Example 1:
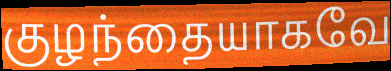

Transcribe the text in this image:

குழந்தையாகவே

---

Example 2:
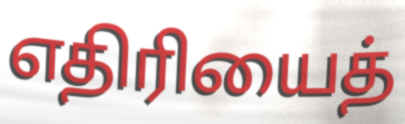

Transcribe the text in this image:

எதிரியைத்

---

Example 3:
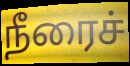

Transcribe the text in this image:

நீரைச்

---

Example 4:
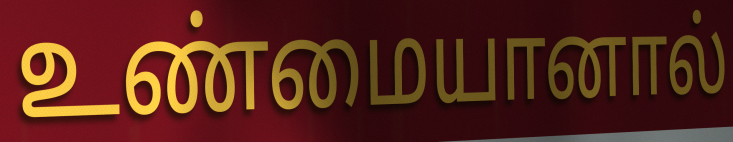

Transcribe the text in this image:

உண்மையானால்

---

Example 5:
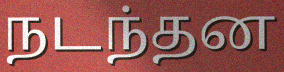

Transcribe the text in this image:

நடந்தன